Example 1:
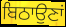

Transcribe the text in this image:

ਬਿਠਾਉਣਾਂ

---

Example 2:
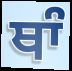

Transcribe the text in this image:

ਥਾੰ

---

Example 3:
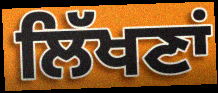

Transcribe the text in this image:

ਲਿੱਖਣਾਂ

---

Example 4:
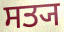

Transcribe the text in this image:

ਸਤ੍ਯ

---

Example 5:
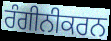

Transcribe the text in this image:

ਰੰਗੀਨੀਕਰਨ